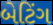
બેટિંગ